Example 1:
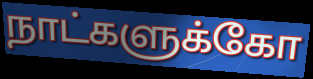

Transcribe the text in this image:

நாட்களுக்கோ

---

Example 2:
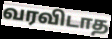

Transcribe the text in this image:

வரவிடாத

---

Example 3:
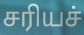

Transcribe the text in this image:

சரியச்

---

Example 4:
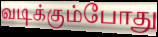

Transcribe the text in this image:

வடிக்கும்போது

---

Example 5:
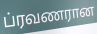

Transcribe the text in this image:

ப்ரவணரான